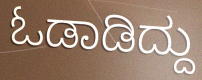
ಓಡಾಡಿದ್ದು